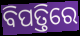
ବିପତ୍ତିରେ